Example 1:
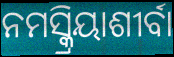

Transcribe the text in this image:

ନମସ୍କ୍ରିୟାଶୀର୍ବା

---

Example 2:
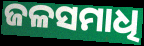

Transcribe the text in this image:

ଜଳସମାଧି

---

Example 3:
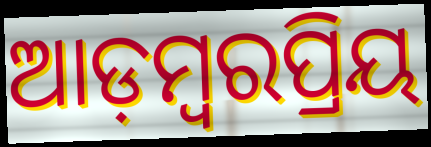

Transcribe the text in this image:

ଆଡ଼ମ୍ବରପ୍ରିୟ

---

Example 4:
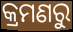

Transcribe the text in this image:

କ୍ରମଣରୁ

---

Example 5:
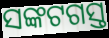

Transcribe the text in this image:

ସଙ୍କଟଗସ୍ତ